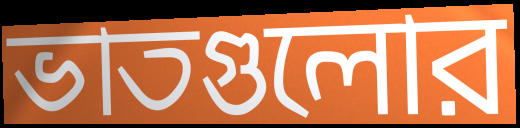
ভাতগুলোর